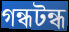
গন্ধটন্ধ